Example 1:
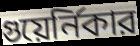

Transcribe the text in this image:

গুয়ের্নিকার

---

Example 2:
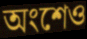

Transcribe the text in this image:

অংশেও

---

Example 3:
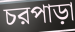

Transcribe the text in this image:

চরপাড়া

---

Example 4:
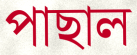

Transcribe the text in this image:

পাছাল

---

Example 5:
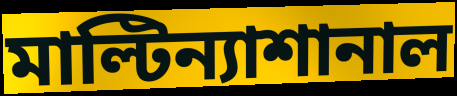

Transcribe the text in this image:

মাল্টিন্যাশানাল